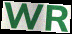
WR